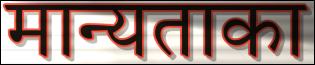
मान्यताका